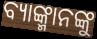
ବ୍ୟାଙ୍କ୍ମାନଙ୍କୁ